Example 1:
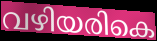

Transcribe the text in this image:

വഴിയരികെ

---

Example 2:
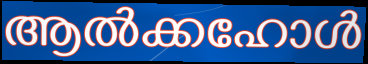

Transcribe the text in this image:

ആൽക്കഹോൾ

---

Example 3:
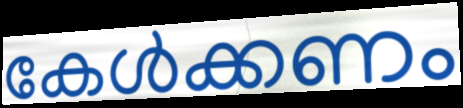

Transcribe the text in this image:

കേൾക്കണം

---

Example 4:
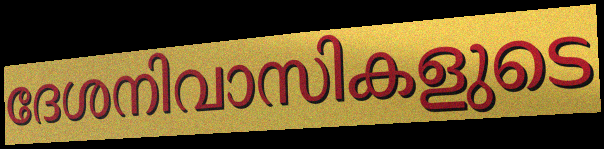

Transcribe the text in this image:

ദേശനിവാസികളുടെ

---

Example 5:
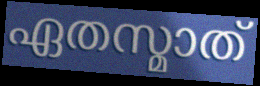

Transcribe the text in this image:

ഏതസ്മാത്